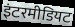
इंटरमीडियट